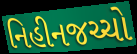
નિહીનજચ્ચો